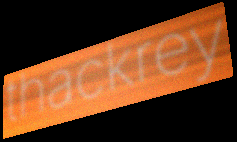
thackrey